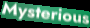
Mysterious